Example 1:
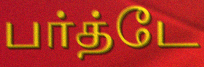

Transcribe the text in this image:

பர்த்டே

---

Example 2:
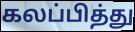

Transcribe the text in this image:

கலப்பித்து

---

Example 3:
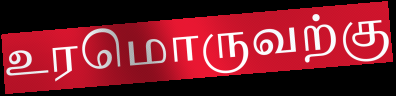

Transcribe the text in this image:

உரமொருவற்கு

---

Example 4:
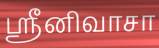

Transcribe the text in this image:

ஸ்ரீனிவாசா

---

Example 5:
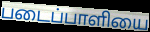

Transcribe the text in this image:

படைப்பாளியை